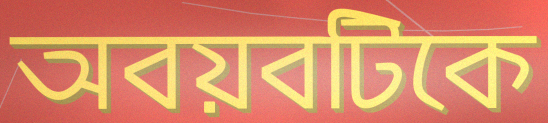
অবয়বটিকে